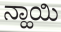
ನ್ಹಾಯಿ